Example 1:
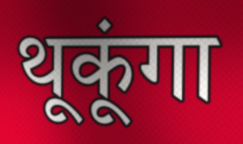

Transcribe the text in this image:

थूकूंगा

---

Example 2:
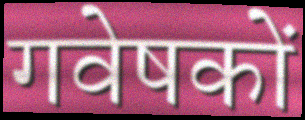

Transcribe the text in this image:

गवेषकों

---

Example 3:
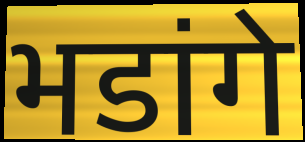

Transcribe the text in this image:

भडांगे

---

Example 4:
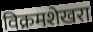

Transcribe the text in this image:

विक्रमशेखरा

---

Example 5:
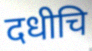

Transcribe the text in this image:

दधीचि